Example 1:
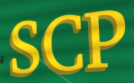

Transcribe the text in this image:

SCP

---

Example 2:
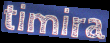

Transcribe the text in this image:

timira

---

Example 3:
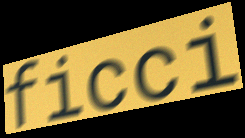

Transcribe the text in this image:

ficci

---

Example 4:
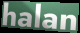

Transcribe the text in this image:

halan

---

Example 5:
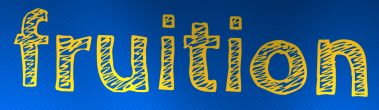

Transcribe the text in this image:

fruition